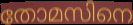
തോമസിനെ